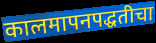
कालमापनपद्धतीचा